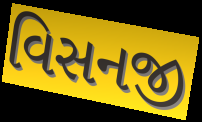
વિસનજી